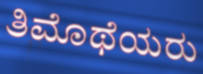
ತಿಮೊಥೆಯರು